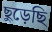
ছুড়েছি